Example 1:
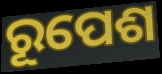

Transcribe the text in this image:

ରୂପେଶ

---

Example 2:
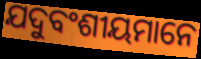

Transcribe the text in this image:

ଯଦୁବଂଶୀୟମାନେ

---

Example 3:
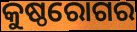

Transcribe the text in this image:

କୁଷ୍ଠରୋଗର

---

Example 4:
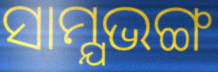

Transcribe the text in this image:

ସାମ୍ଯଭଙ୍ଗ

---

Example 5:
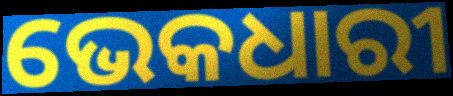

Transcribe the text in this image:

ଭେକଧାରୀ